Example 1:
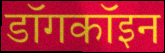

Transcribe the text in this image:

डॉगकॉइन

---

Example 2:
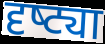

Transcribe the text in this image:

दृष्ट्या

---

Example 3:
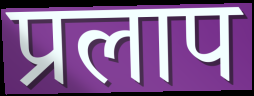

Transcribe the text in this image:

प्रलाप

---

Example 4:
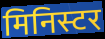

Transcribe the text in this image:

मिनिस्टर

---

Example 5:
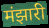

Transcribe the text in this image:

मंझारी